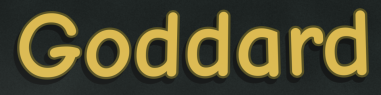
Goddard